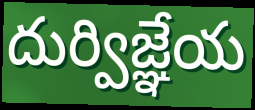
దుర్విజ్ఞేయ